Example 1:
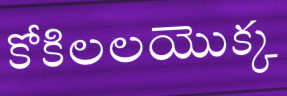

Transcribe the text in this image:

కోకిలలయొక్క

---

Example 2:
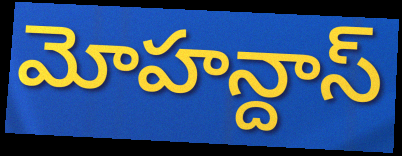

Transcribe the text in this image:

మోహన్దాస్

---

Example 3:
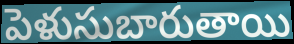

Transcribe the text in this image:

పెళుసుబారుతాయి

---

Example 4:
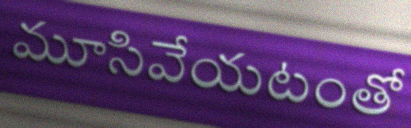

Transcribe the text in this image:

మూసివేయటంతో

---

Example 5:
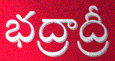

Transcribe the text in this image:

భద్రాద్రీ